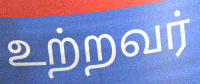
உற்றவர்